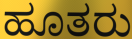
ಹೂತರು